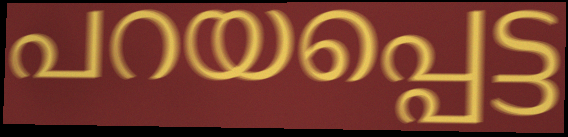
പറയപ്പെട്ട